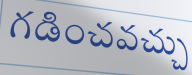
గడించవచ్చు